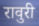
रावुरी